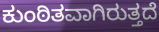
ಕುಂಠಿತವಾಗಿರುತ್ತದೆ